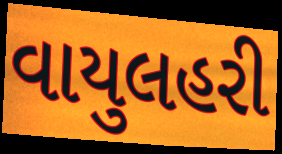
વાયુલહરી